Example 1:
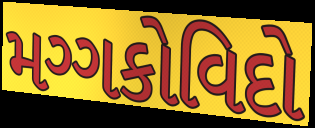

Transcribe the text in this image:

મગ્ગકોવિદો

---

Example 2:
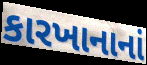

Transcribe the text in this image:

કારખાનાનાં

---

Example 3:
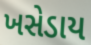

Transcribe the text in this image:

ખસેડાય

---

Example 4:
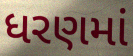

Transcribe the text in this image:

ધરણમાં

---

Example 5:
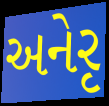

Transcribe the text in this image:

અનેરૃ